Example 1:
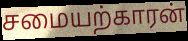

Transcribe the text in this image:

சமையற்காரன்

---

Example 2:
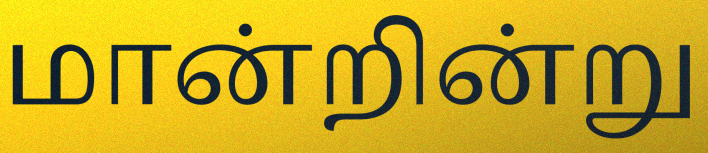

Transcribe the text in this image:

மான்றின்று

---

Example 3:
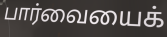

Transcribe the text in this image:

பார்வையைக்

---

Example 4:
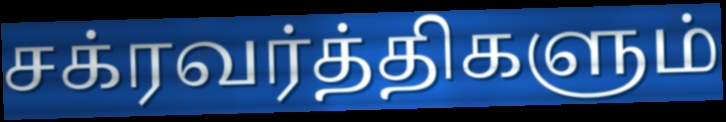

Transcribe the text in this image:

சக்ரவர்த்திகளும்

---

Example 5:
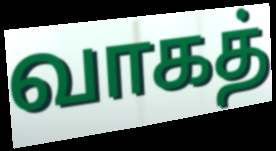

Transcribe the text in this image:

வாகத்